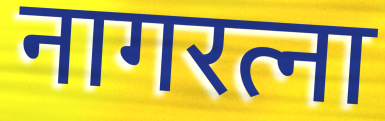
नागरत्ना